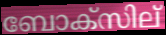
ബോക്സില്